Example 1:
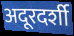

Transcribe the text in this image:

अदूरदर्शी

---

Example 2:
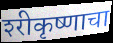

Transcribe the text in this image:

श्रीकृष्णाचा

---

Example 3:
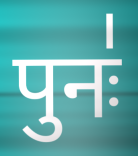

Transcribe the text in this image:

पुनः॑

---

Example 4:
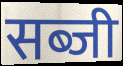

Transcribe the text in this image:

सब्जी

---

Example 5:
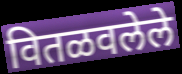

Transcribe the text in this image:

वितळवलेले